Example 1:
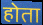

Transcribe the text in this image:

होता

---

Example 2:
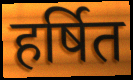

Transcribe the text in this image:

हर्षित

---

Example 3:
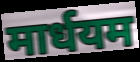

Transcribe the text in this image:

मार्धयम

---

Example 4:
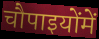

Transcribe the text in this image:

चौपाइयोंमें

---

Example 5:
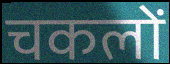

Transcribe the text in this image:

चकलों